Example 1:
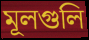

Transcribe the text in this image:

মূলগুলি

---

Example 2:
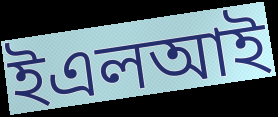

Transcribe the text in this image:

ইএলআই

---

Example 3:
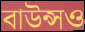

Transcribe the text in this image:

বাউন্সও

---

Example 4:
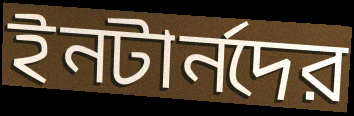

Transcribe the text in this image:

ইনটার্নদের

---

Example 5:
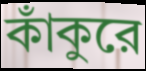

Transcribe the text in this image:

কাঁকুরে